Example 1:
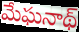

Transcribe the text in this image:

మేఘనాథ్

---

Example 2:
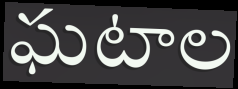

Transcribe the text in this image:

ఘటాల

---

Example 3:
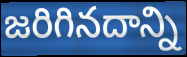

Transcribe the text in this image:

జరిగినదాన్ని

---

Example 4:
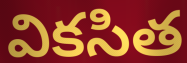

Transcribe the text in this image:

వికసిత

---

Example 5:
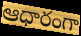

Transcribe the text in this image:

ఆధారంగా